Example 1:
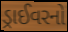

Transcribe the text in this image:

ડ્રાઈવરનો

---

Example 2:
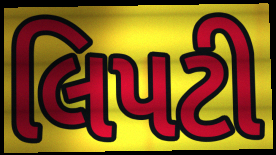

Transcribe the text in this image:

લિપટી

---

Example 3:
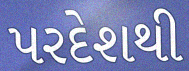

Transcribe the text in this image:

પરદેશથી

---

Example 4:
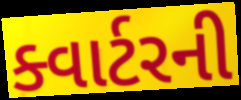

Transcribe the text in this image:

ક્વાર્ટરની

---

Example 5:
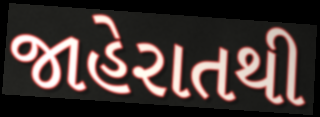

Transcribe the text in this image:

જાહેરાતથી